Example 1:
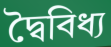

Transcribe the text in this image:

দ্বৈবিধ্য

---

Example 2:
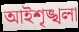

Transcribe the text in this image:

আইশৃঙ্খলা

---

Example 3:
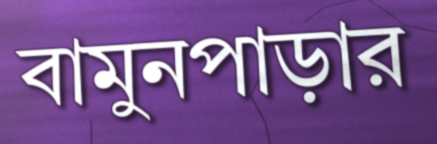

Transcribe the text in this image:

বামুনপাড়ার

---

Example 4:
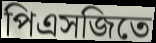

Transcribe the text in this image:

পিএসজিতে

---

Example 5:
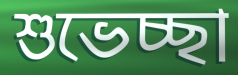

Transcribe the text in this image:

শুভেচ্ছা